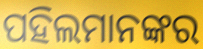
ପହିଲମାନଙ୍କର